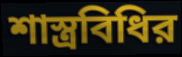
শাস্ত্রবিধির